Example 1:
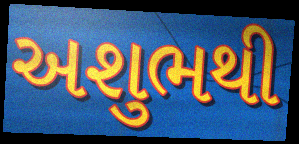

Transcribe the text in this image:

અશુભથી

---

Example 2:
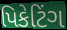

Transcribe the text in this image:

પિકેટિંગ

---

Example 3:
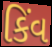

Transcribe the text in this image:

કિંવ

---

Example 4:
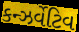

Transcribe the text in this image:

કન્ઝર્વેટિવ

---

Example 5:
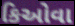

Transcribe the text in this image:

કિઓવા